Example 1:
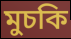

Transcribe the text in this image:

মুচকি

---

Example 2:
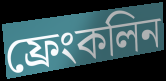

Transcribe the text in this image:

ফ্ৰেংকলিন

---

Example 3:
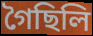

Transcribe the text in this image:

গৈছিলি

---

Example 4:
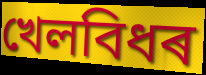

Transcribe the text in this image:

খেলবিধৰ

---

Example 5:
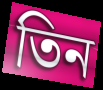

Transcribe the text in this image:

তিন